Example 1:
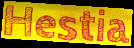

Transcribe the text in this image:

Hestia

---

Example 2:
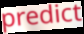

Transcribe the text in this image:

predict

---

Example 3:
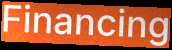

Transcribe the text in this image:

Financing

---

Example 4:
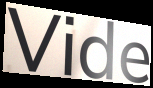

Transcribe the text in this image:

Vide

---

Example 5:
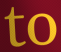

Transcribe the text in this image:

to